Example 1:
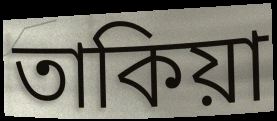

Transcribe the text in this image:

তাকিয়া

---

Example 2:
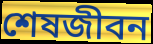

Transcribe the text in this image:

শেষজীবন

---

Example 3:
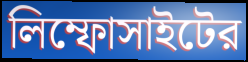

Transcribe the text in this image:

লিম্ফোসাইটের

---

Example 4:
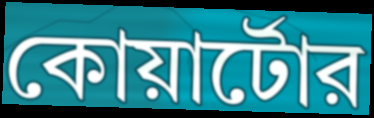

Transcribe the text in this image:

কোয়ার্টোর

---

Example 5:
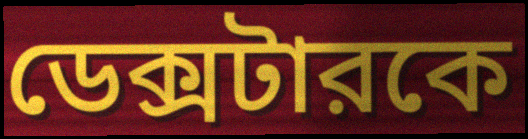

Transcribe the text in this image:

ডেক্সটারকে